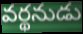
వర్థనుడు